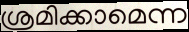
ശ്രമിക്കാമെന്ന